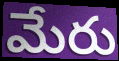
మేరు